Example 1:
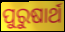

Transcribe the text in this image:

ପୁରୁଷାର୍ଥ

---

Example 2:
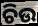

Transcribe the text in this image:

ଚିଉ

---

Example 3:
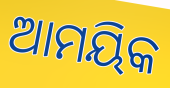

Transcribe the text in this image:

ଆମୟିକ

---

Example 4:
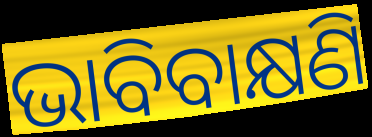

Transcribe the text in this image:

ଭାବିବାକ୍ଷଣି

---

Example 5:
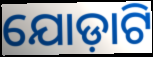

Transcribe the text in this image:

ଯୋଡ଼ାଟି